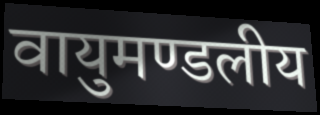
वायुमण्डलीय